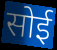
सोई